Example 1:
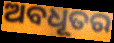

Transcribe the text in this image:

ଅବଧୂତର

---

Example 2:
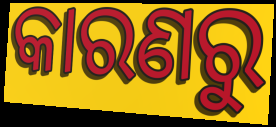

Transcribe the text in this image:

କାରଣରୁ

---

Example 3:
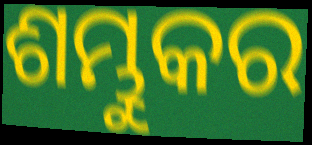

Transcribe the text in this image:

ଶମ୍ଭୁକର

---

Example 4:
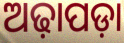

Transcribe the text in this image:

ଅଢ଼ାପଡ଼ା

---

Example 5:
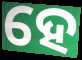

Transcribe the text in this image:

ହେ